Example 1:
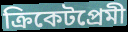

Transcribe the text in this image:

ক্রিকেটপ্রেমী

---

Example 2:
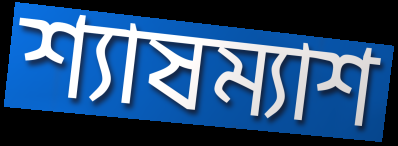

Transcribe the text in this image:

শ্যাষম্যাশ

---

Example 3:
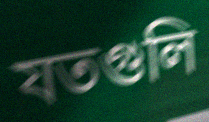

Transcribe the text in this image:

যতগুলি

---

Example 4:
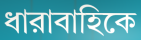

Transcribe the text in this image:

ধারাবাহিকে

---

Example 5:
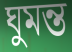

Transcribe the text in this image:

ঘুমন্ত